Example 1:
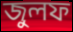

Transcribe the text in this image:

জুলফ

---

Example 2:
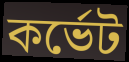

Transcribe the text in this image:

কর্ভেট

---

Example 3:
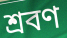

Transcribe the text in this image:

শ্রবণ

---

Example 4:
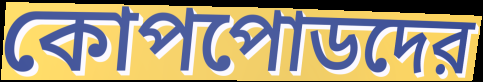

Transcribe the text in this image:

কোপপোডদের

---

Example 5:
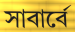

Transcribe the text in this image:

সাবার্বে